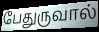
பேதுருவால்